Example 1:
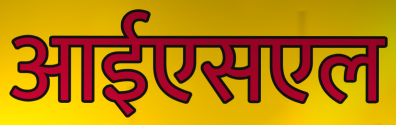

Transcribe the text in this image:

आईएसएल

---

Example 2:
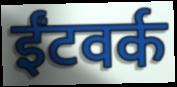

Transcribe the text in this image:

ईंटवर्क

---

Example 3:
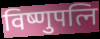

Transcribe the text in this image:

विष्णुपत्नि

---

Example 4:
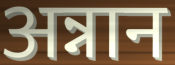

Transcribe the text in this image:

अन्नान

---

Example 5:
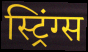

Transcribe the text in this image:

स्ट्रिंग्स